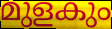
മുളകും